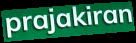
prajakiran